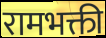
रामभक्ती